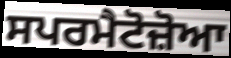
ਸਪਰਮੈਟੋਜ਼ੋਆ